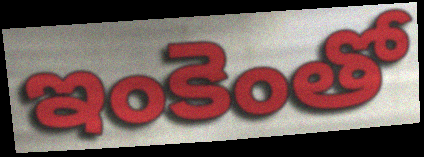
ఇంకెంతో